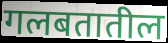
गलबतातील